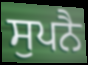
ਸੁਪਨੈ